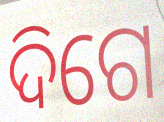
ଦିଗେ